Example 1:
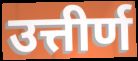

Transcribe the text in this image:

उत्तीर्ण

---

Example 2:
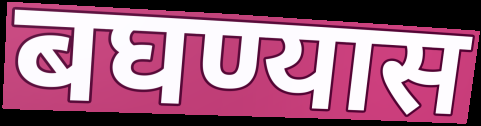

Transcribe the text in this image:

बघण्यास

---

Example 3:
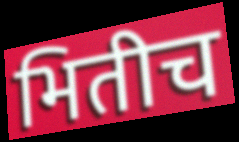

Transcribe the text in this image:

भितीच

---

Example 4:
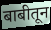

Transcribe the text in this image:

बाबीतून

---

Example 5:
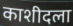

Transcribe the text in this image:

काशीदला